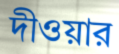
দীওয়ার